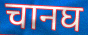
चानघ